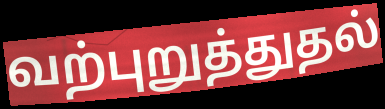
வற்புறுத்துதல்